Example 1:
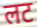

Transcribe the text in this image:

लट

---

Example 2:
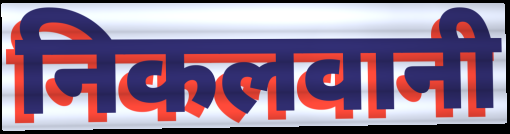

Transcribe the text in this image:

निकलवानी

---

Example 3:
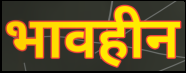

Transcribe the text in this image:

भावहीन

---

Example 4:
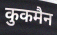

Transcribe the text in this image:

कुकमैन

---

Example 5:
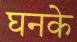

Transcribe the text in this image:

घनके